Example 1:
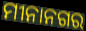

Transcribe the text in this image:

ମୀନାନଗର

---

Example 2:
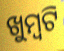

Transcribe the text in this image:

ଖୁମ୍ବଟି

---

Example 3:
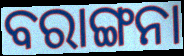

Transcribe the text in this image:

ବରାଙ୍ଗନା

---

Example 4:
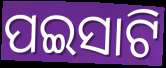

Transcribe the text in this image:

ପଇସାଟି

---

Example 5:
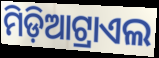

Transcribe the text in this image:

ମିଡ଼ିଆଟ୍ରାଏଲ